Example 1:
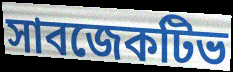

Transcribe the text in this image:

সাবজেকটিভ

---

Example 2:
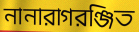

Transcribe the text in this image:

নানারাগরঞ্জিত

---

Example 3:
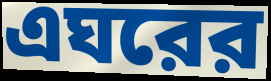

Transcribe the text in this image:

এঘরের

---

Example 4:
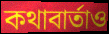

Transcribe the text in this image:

কথাবার্তাও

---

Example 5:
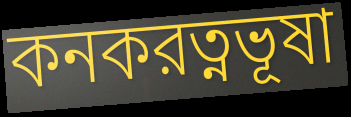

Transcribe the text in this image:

কনকরত্নভূষা